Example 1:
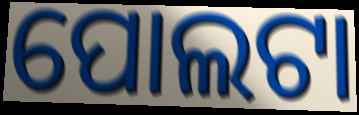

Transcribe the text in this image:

ପୋଲଟା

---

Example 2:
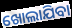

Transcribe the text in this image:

ଖୋଲାଯିବା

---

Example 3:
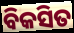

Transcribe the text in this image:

ବିକସିତ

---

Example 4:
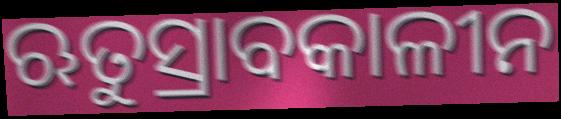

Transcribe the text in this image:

ଋତୁସ୍ରାବକାଳୀନ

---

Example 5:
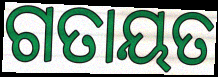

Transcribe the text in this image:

ଗତାୟତ